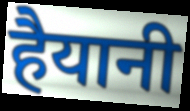
हैयानी